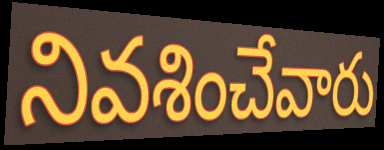
నివశించేవారు